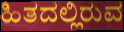
ಹಿತದಲ್ಲಿರುವ